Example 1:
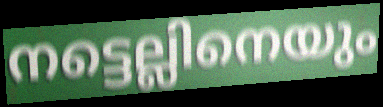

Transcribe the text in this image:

നട്ടെല്ലിനെയും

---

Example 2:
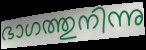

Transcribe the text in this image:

ഭാഗത്തുനിന്നു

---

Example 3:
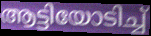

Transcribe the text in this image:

ആട്ടിയോടിച്ച്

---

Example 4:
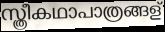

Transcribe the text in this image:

സ്ത്രീകഥാപാത്രങ്ങള്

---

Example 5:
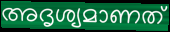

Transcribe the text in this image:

അദൃശ്യമാണത്